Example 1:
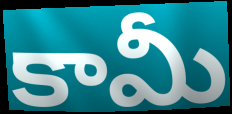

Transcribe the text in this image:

కామీ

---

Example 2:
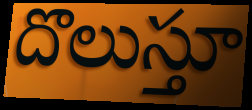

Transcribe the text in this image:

దొలుస్తూ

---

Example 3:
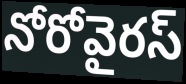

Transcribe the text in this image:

నోరోవైరస్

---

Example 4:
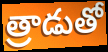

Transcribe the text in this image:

త్రాడుతో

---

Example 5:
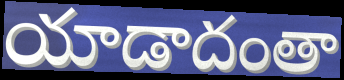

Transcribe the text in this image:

యాడాదంతా